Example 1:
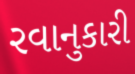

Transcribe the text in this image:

રવાનુકારી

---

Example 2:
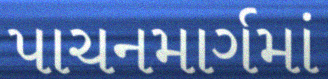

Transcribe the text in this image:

પાચનમાર્ગમાં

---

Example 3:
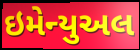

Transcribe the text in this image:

ઇમેન્યુઅલ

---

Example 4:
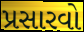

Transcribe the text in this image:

પ્રસારવો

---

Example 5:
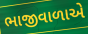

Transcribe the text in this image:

ભાજીવાળાએ